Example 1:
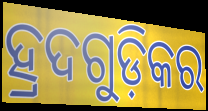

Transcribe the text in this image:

ହ୍ରଦଗୁଡ଼ିକର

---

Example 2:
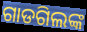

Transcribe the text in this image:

ଗାଡଗିଲଙ୍କ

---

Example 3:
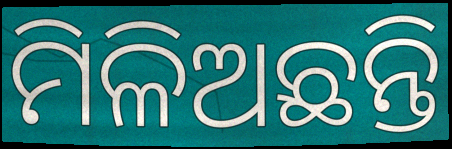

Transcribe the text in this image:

ମିଳିଅଛନ୍ତି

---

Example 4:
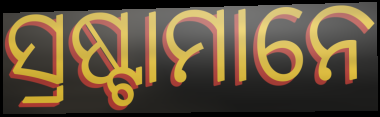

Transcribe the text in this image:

ସ୍ରଷ୍ଟାମାନେ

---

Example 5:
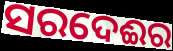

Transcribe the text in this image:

ସରଦେଈର